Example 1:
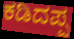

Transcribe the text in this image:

ಕಡಿದಪ್ಪ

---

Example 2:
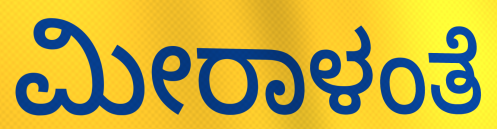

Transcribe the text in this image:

ಮೀರಾಳಂತೆ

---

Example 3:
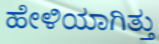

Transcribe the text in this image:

ಹೇಳಿಯಾಗಿತ್ತು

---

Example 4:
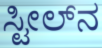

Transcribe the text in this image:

ಸ್ಟೀಲ್‌ನ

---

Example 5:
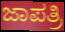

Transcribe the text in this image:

ಜಾಪತ್ರಿ